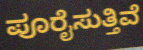
ಪೂರೈಸುತ್ತಿವೆ